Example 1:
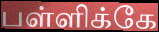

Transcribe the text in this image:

பள்ளிக்கே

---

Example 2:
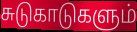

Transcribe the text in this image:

சுடுகாடுகளும்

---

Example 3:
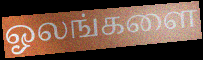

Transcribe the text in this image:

ஓலங்களை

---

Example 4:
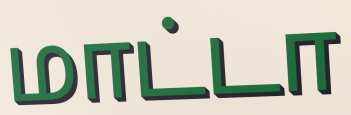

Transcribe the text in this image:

மாட்டா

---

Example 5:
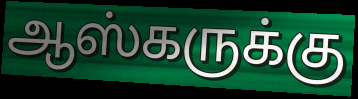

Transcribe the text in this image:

ஆஸ்கருக்கு